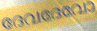
ദേവദേവോ